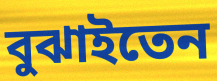
বুঝাইতেন